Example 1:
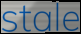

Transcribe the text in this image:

stale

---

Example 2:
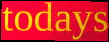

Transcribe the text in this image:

todays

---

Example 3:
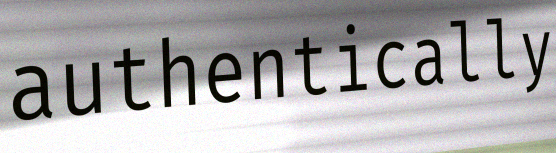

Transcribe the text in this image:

authentically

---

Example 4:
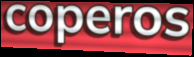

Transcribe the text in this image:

coperos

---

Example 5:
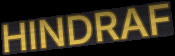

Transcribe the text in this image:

HINDRAF